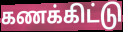
கணக்கிட்டு